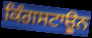
ਕਿੰਗਸਟਾਊਨ